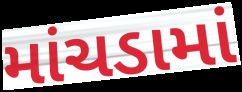
માંચડામાં